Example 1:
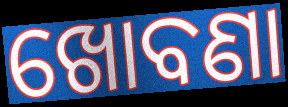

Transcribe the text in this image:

ଖୋବଣା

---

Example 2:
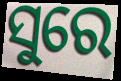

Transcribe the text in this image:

ସୁରେ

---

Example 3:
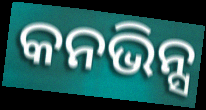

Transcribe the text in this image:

କନଭିନ୍ସ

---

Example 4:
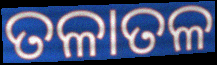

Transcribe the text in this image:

ତଳାତଳ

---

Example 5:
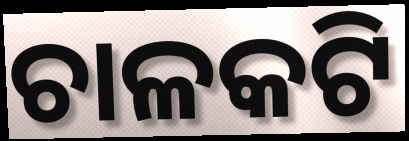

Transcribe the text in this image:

ଚାଳକଟି